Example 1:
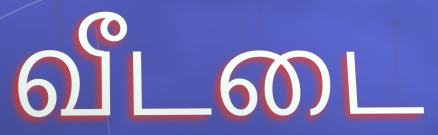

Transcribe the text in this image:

வீடடை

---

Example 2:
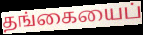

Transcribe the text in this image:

தங்கையைப்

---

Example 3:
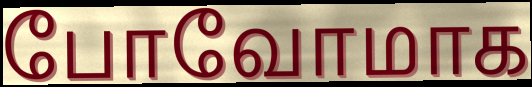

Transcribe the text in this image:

போவோமாக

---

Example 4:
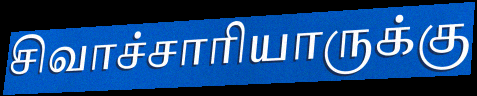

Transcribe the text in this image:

சிவாச்சாரியாருக்கு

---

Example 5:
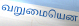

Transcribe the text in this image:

வறுமையென